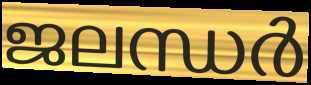
ജലന്ധർ